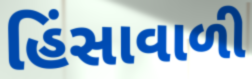
હિંસાવાળી